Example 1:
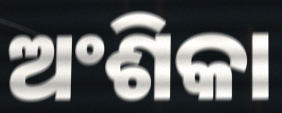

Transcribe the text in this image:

ଅଂଶିକା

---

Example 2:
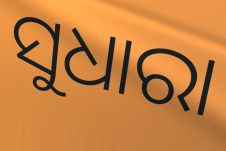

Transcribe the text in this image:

ସୁଧାରା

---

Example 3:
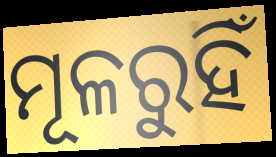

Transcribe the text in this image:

ମୂଳରୁହିଁ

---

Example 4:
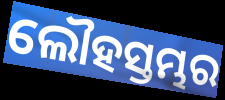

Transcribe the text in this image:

ଲୌହସ୍ତମ୍ଭର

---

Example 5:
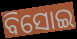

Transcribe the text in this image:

ବିସୋଇ